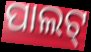
ପାଲଟ୍